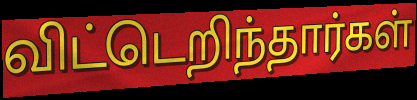
விட்டெறிந்தார்கள்